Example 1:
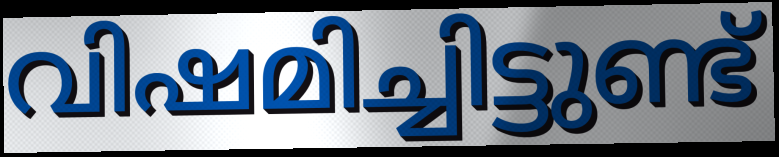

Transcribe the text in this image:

വിഷമിച്ചിട്ടുണ്ട്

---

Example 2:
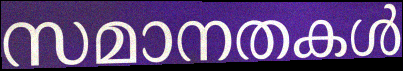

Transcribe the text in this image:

സമാനതകൾ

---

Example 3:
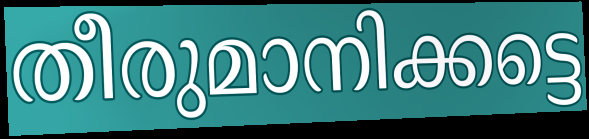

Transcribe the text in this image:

തീരുമാനിക്കട്ടെ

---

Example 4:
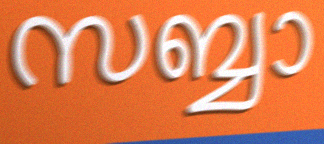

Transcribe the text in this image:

സബ്ബാ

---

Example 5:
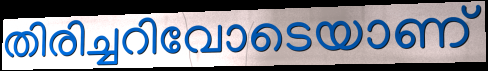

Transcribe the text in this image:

തിരിച്ചറിവോടെയാണ്